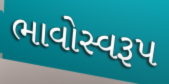
ભાવોસ્વરૂપ